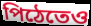
পিঠেতেও